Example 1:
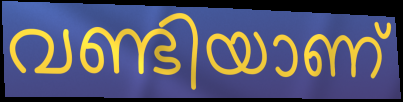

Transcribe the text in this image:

വണ്ടിയാണ്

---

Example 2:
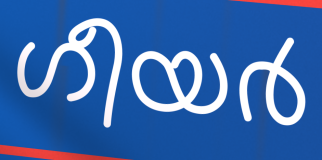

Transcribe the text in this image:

ഗീയർ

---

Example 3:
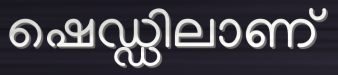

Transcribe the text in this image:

ഷെഡ്ഡിലാണ്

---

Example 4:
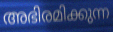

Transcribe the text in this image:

അഭിരമിക്കുന്ന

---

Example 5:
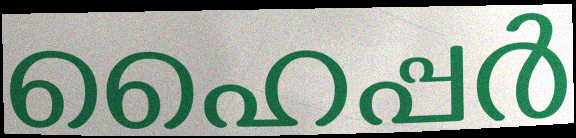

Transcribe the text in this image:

ഹൈപ്പർ